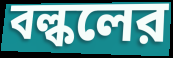
বল্কলের